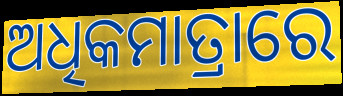
ଅଧିକମାତ୍ରାରେ